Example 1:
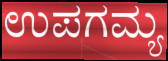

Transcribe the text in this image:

ಉಪಗಮ್ಯ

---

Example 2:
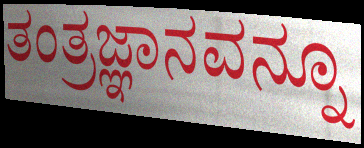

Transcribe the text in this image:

ತಂತ್ರಜ್ಞಾನವನ್ನೂ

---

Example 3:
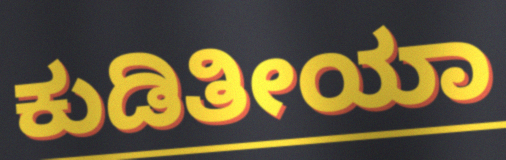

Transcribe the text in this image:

ಕುಡಿತೀಯಾ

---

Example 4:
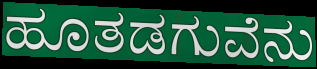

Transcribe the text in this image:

ಹೂತಡಗುವೆನು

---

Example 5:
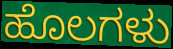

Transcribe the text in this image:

ಹೊಲಗಳು